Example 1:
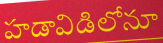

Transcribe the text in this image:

హడావిడిలోనూ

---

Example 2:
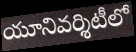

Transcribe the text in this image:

యూనివర్శిటీలో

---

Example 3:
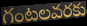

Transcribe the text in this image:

గంటలవరకు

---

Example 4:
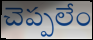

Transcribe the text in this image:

చెప్పలేం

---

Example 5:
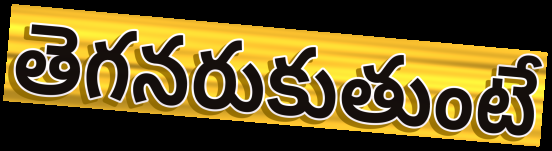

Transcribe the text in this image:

తెగనరుకుతుంటే